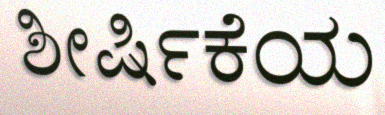
ಶೀರ್ಷಿಕೆಯ